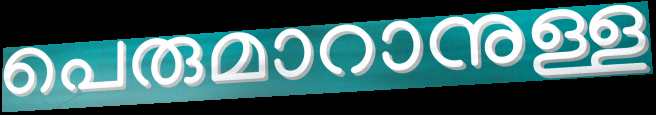
പെരുമാറാനുള്ള